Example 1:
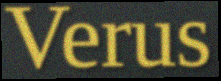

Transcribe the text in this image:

Verus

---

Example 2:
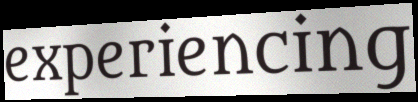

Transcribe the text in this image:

experiencing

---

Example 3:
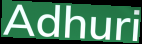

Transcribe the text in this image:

Adhuri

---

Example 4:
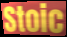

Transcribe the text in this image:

Stoic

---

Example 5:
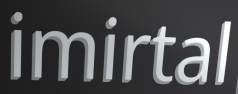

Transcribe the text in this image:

imirtal